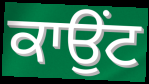
ਕਾਉਂਟ